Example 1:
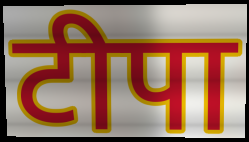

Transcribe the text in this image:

टीपा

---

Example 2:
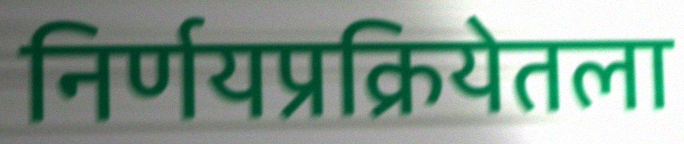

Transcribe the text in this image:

निर्णयप्रक्रियेतला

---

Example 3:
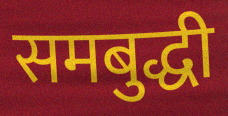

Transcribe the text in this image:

समबुद्धी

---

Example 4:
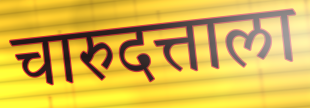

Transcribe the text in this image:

चारुदत्ताला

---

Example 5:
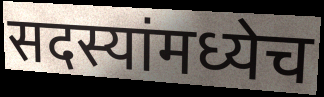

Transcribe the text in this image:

सदस्यांमध्येच